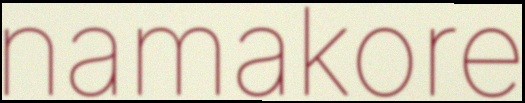
namakore